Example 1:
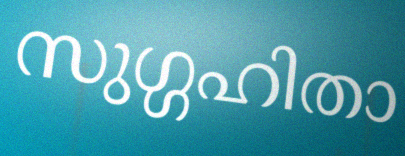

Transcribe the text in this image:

സുഗ്ഗഹിതാ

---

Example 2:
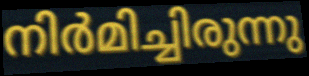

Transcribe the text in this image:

നിർമിച്ചിരുന്നു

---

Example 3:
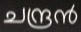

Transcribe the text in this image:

ചന്ദ്രൻ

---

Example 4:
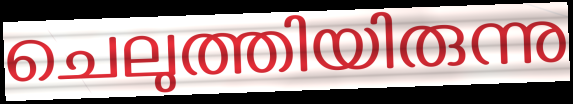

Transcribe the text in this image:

ചെലുത്തിയിരുന്നു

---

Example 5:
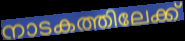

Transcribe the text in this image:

നാടകത്തിലേക്ക്